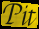
Pit